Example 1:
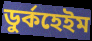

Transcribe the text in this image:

ডুর্কহেইম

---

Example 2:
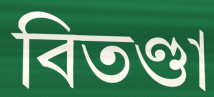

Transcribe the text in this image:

বিতণ্ডা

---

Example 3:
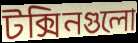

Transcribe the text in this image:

টক্সিনগুলো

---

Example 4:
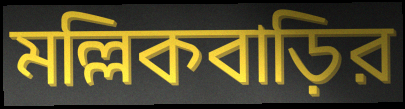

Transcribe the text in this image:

মল্লিকবাড়ির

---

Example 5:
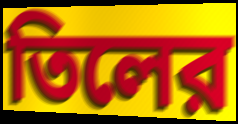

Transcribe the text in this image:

তিলের